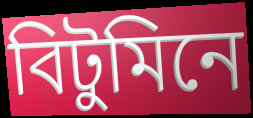
বিটুমিনে